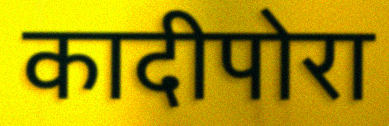
कादीपोरा